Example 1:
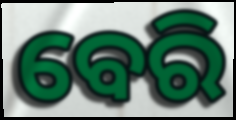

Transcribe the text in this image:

ବେରି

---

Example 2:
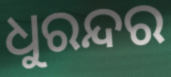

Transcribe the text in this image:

ଧୁରନ୍ଦର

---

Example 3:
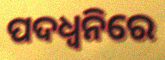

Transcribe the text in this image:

ପଦଧ୍ୱନିରେ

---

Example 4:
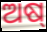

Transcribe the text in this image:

ଅଷ୍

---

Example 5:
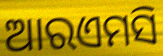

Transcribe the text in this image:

ଆରଏମସି